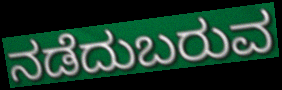
ನಡೆದುಬರುವ